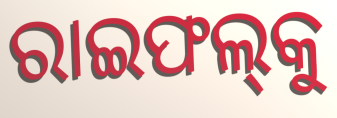
ରାଇଫଲ୍‍କୁ